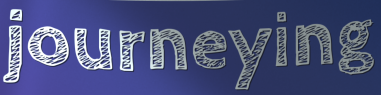
journeying